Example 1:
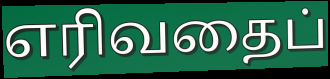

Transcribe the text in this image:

எரிவதைப்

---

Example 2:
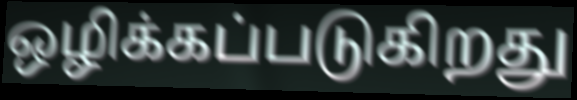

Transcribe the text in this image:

ஒழிக்கப்படுகிறது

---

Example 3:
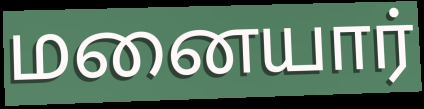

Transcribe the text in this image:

மனையார்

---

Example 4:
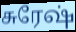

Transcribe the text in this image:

சுரேஷ்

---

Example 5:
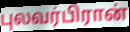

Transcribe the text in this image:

புலவர்பிரான்